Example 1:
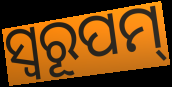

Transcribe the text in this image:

ସ୍ୱରୂପମ୍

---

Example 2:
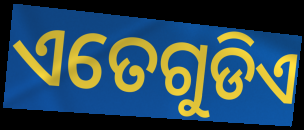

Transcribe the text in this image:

ଏତେଗୁଡିଏ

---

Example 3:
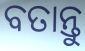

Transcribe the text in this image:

ବତାନ୍ତୁ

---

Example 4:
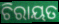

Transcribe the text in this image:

ଚିରାୟତ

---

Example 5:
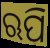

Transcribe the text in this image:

ଋପି